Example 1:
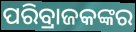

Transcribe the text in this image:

ପରିବ୍ରାଜକଙ୍କର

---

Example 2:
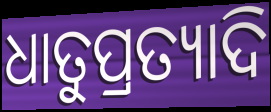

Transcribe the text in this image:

ଧାତୁପ୍ରତ୍ୟାଦି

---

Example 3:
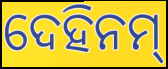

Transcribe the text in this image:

ଦେହିନମ୍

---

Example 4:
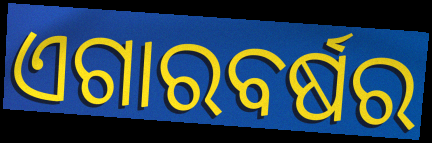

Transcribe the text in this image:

ଏଗାରବର୍ଷର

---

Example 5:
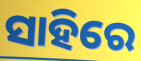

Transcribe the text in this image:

ସାହିରେ